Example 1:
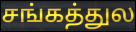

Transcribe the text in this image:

சங்கத்துல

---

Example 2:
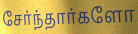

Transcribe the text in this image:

சேர்ந்தார்களோ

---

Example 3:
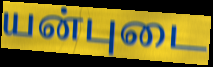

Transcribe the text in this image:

யன்புடை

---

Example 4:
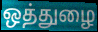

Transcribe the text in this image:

ஒத்துழை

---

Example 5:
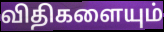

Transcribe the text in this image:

விதிகளையும்